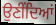
ਉਣੀਂਦਿਆਂ